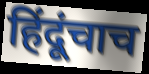
हिंदूंचाच